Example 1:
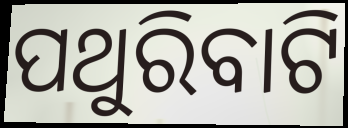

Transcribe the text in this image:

ପଥୁରିବାଟି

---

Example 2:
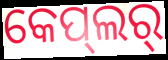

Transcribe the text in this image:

କେପ୍‌ଲର୍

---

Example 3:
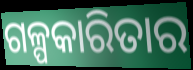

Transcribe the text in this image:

ଗଳ୍ପକାରିତାର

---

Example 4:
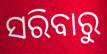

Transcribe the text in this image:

ସରିବାରୁ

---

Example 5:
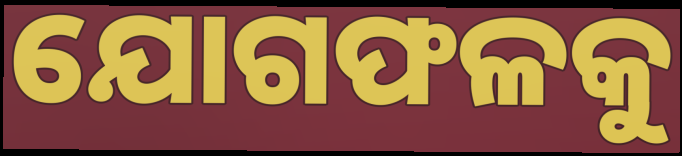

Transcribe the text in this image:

ଯୋଗଫଳକୁ